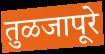
तुळजापूरे